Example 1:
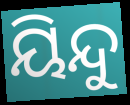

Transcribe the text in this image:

ୟିନ୍ଦୁ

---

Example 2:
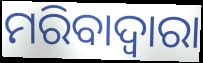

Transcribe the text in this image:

ମରିବାଦ୍ୱାରା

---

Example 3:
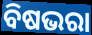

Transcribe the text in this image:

ବିଷଭରା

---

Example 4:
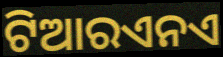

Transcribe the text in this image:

ଟିଆରଏନଏ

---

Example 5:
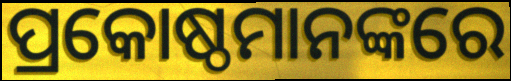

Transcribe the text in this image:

ପ୍ରକୋଷ୍ଠମାନଙ୍କରେ